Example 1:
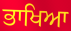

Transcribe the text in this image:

ਭਾਖਿਆ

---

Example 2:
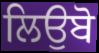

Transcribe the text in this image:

ਲਿਉਬੋ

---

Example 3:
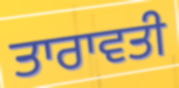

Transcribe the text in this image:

ਤਾਰਾਵਤੀ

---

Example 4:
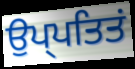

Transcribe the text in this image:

ਉਪ੍ਪਤਿਤਂ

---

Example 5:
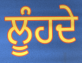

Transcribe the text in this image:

ਲੂੰਹਦੇ